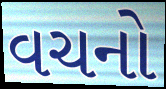
વચનો